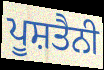
ਪੂਸ਼ਤੈਨੀ